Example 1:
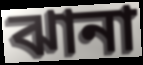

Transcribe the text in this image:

ঝানা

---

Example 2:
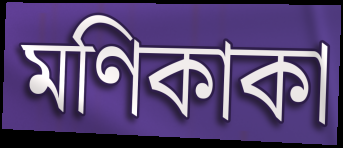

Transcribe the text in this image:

মণিকাকা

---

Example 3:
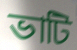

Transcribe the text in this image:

ভাটি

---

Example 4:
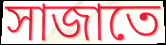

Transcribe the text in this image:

সাজাতে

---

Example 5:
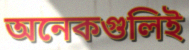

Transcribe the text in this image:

অনেকগুলিই